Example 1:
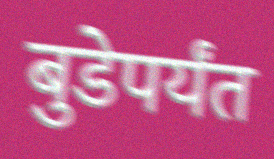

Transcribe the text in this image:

बुडेपर्यंत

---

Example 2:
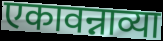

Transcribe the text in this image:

एकावन्नाव्या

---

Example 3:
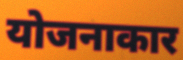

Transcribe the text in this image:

योजनाकार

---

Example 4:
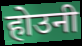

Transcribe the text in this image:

होउनी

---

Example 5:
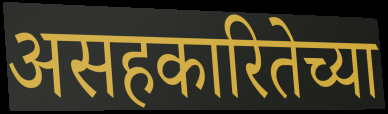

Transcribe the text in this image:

असहकारितेच्या